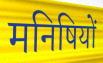
मनिषियों